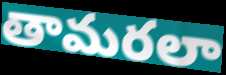
తామరలా